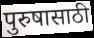
पुरुषासाठी